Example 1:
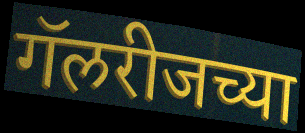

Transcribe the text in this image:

गॅलरीजच्या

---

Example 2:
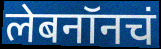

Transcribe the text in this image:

लेबनॉनचं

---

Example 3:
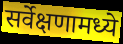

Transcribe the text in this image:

सर्वेक्षणामध्ये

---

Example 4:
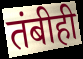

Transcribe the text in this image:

तंबीही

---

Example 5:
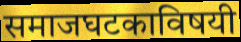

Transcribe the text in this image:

समाजघटकाविषयी